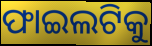
ଫାଇଲଟିକୁ